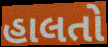
હાલતો